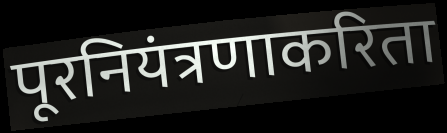
पूरनियंत्रणाकरिता